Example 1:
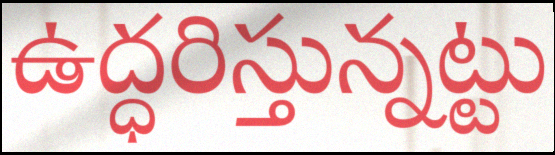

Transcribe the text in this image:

ఉద్ధరిస్తున్నట్టు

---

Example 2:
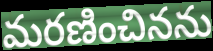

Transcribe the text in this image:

మరణించినను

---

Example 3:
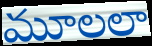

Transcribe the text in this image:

మూలలా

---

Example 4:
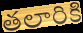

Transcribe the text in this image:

తలారికి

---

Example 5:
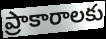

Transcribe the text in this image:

ప్రాకారాలకు